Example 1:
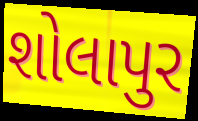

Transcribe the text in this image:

શોલાપુર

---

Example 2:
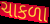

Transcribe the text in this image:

ચાકળા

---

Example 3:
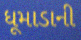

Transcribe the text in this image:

ધૂમાડાની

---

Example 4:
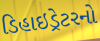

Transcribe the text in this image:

ડિહાઇડ્રેટરનો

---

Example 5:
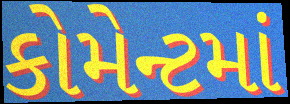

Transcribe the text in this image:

કોમેન્ટમાં